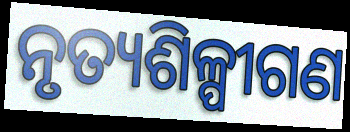
ନୃତ୍ୟଶିଳ୍ପୀଗଣ